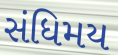
સંધિમય